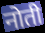
नोती